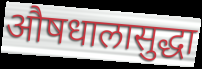
औषधालासुद्धा